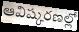
ఆవిష్కరణల్లో